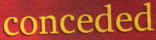
conceded